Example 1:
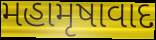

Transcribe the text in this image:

મહામૃષાવાદ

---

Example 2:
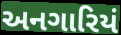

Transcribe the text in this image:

અનગારિયં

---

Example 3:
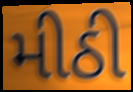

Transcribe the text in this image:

મીઠી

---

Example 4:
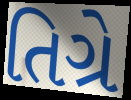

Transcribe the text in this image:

તિગ્રે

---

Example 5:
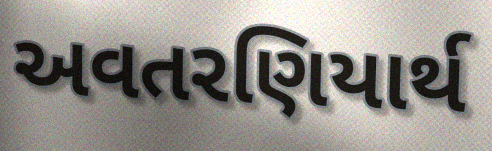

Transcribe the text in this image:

અવતરણિયાર્થ